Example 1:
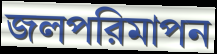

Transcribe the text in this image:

জলপরিমাপন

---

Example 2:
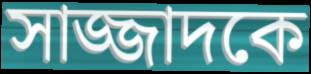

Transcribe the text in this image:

সাজ্জাদকে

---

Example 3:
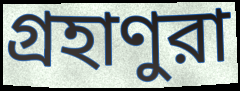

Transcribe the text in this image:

গ্রহাণুরা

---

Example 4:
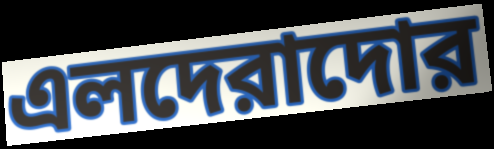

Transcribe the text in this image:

এলদেরাদোর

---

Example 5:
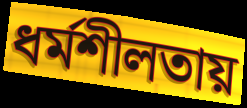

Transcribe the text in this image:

ধর্মশীলতায়